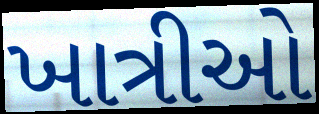
ખાત્રીઓ